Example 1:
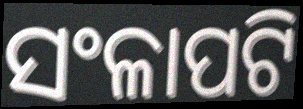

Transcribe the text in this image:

ସଂଳାପଟି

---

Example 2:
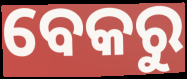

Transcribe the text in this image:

ବେକରୁ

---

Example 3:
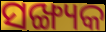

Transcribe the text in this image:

ସଙ୍ଖ୍ୟକ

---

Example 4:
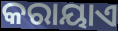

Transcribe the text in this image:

କରାୟାଏ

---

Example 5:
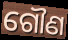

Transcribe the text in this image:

ଗୌଣ